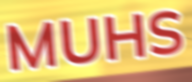
MUHS